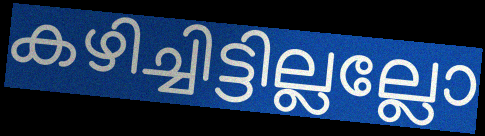
കഴിച്ചിട്ടില്ലല്ലോ